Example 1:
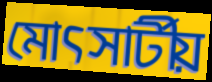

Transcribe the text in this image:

মোৎসার্টীয়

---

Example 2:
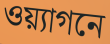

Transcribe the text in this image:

ওয়্যাগনে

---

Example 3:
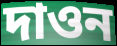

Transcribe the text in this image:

দাওন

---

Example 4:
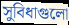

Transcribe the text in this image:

সুবিধাগুলো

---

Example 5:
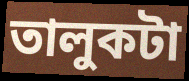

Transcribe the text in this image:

তালুকটা